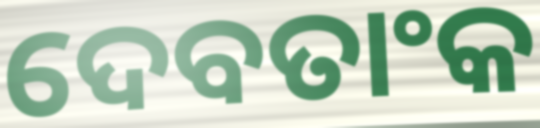
ଦେବତାଂକ